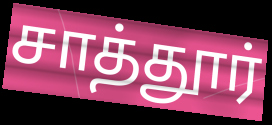
சாத்தூர்